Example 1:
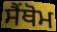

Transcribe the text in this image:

ਸੈਂਥੋਮ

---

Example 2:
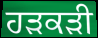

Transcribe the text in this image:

ਹੜਕੜੀ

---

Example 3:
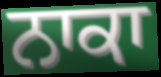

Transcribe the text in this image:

ਨਾਕਾ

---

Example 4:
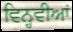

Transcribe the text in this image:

ਵਿਨ੍ਹਵੀਆਂ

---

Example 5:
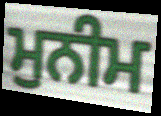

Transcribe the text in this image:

ਮੁਨੀਮ